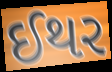
ઈથર